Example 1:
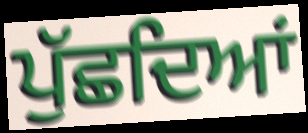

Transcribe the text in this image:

ਪੁੱਛਦਿਆਂ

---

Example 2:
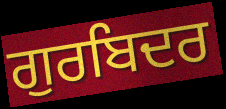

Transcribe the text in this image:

ਗੁਰਬਿਦਰ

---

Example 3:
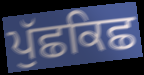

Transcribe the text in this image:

ਪੁੱਛਕਿਛ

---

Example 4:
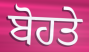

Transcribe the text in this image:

ਬੋਹਤੇ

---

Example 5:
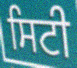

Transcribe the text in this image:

ਸਿਟੀ